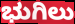
ಭುಗಿಲು